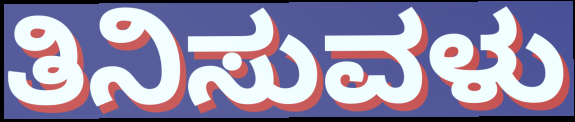
ತಿನಿಸುವಳು